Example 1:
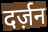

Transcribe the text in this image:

दर्ज़न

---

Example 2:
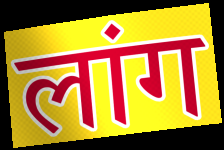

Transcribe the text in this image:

लांग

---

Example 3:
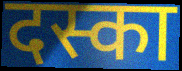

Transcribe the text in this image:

दस्का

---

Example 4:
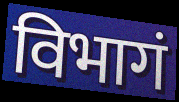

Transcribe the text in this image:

विभागं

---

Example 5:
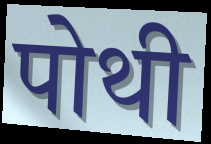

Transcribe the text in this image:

पोथी